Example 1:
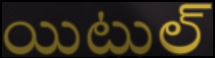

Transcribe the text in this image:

యిటుల్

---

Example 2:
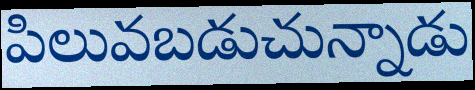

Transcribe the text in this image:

పిలువబడుచున్నాడు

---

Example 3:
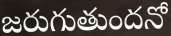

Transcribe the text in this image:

జరుగుతుందనో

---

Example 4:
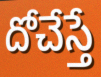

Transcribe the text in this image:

దోచేస్తే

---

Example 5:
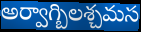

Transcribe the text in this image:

అర్వాగ్బిలశ్చమస